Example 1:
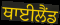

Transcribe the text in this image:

ਥਾਈਲੈਂਡ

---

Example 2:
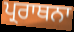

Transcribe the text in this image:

ਪ੍ਰਰਾਥਨਾ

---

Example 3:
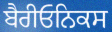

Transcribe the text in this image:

ਬੈਰੀਓਨਿਕਸ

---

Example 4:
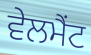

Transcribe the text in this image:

ਵੇਲਮੈਂਟ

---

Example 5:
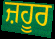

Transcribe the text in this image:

ਜ਼ਹੂਰ